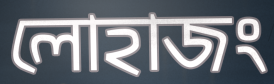
লোহাজং